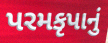
પરમકૃપાનું